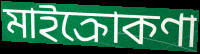
মাইক্রোকণা